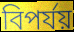
বিপর্যয়